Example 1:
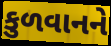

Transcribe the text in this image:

કુળવાનને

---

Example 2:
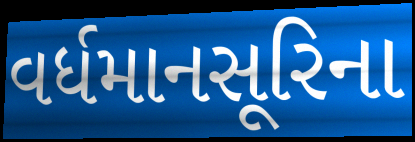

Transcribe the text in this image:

વર્ધમાનસૂરિના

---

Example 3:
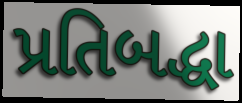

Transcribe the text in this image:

પ્રતિબદ્ધા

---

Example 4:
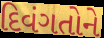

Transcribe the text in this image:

દિવંગતોને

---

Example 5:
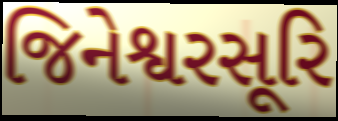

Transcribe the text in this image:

જિનેશ્વરસૂરિ